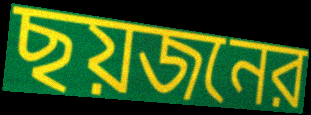
ছয়জনের